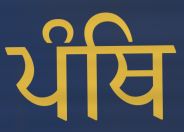
ਪੰਥਿ